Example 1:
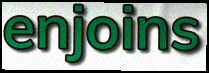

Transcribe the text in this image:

enjoins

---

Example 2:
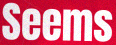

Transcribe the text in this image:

Seems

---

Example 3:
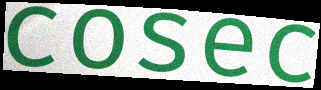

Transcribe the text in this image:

cosec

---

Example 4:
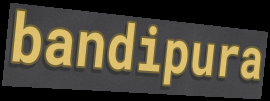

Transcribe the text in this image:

bandipura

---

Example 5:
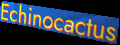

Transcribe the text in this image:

Echinocactus